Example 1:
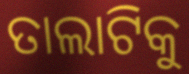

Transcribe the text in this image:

ତାଲାଟିକୁ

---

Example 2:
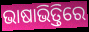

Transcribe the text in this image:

ଭାଷାଭିତ୍ତିରେ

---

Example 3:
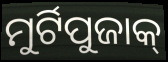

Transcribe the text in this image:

ମୁର୍ଟିପୁଜାକ୍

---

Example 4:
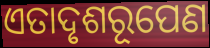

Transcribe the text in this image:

ଏତାଦୃଶରୂପେଣ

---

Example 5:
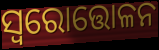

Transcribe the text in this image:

ସ୍ବରୋତ୍ତୋଳନ